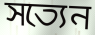
সত্যেন